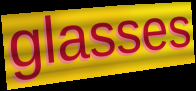
glasses